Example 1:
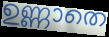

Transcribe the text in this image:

ഉണ്ണാതെ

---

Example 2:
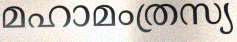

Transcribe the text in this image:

മഹാമംത്രസ്യ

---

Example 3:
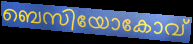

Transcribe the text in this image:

ബെസിയോകോവ്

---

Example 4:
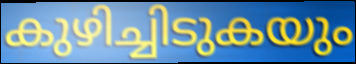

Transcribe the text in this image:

കുഴിച്ചിടുകയും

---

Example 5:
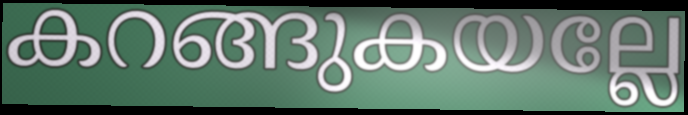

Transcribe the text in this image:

കറങ്ങുകയല്ലേ